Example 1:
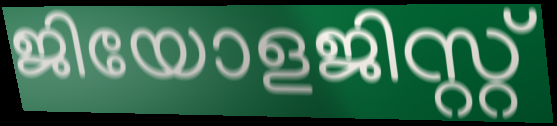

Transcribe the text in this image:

ജിയോളജിസ്റ്റ്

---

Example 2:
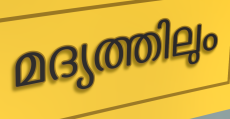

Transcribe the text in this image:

മദ്യത്തിലും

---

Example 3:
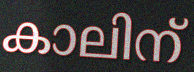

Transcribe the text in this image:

കാലിന്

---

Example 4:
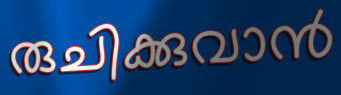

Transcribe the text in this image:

രുചിക്കുവാൻ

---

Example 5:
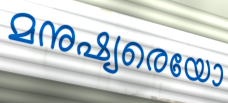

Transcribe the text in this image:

മനുഷ്യരെയോ